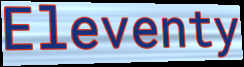
Eleventy